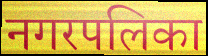
नगरपलिका